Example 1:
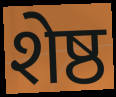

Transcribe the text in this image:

शेष्ठ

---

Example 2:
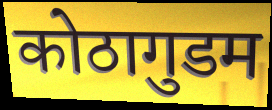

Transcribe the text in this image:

कोठागुडम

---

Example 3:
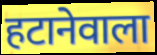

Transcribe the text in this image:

हटानेवाला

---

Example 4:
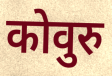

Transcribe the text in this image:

कोवुरु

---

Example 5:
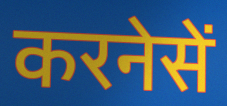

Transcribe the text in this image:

करनेसें